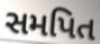
સમપિત